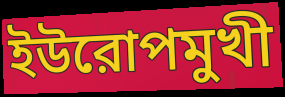
ইউরোপমুখী